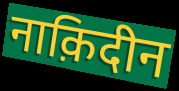
नाक़िदीन